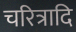
चरित्रादि